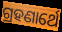
ଗ୍ରହଣାର୍ଥେ